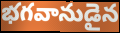
భగవానుడైన